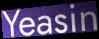
Yeasin